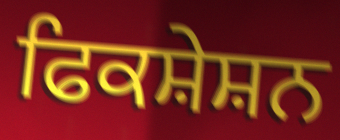
ਫਿਕਸ਼ੇਸ਼ਨ